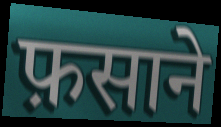
फ़साने